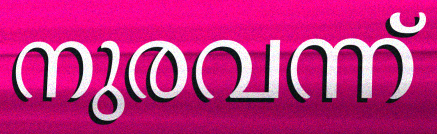
നുരവന്ന്